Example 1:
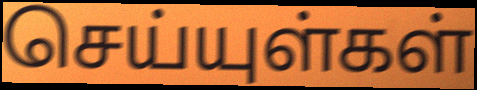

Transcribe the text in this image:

செய்யுள்கள்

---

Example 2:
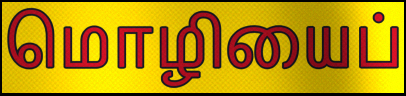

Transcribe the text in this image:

மொழியைப்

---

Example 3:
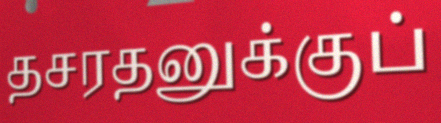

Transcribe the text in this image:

தசரதனுக்குப்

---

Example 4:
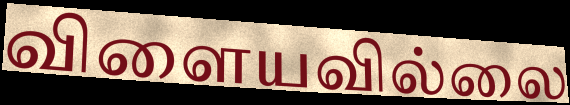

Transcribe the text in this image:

விளையவில்லை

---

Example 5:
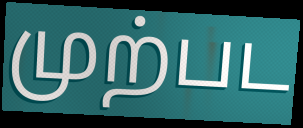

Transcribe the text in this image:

முற்பட